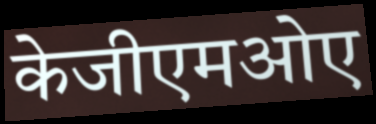
केजीएमओए